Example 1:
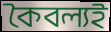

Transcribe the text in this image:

কৈবল্যই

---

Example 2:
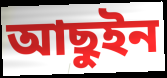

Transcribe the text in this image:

আছুইন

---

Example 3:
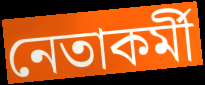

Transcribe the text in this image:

নেতাকর্মী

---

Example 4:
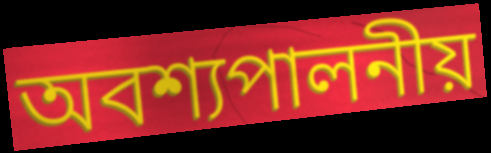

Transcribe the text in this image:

অবশ্যপালনীয়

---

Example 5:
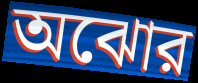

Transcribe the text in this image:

অঝোর